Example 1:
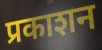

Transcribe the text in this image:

प्रकाशन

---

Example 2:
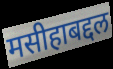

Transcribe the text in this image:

मसीहाबद्दल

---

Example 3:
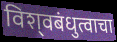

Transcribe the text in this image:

विश्वबंधुत्वाचा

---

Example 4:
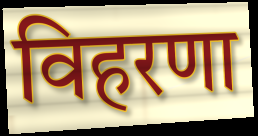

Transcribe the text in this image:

विहरणा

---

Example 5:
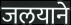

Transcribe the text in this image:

जलयाने